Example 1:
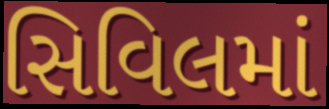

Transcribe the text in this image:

સિવિલમાં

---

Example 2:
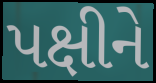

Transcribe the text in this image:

પક્ષીને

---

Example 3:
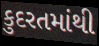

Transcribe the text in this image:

કુદરતમાંથી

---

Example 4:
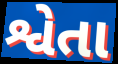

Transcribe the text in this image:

શ્વેતા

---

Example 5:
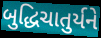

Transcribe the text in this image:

બુદ્ધિચાતુર્યને